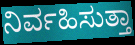
ನಿರ್ವಹಿಸುತ್ತಾ